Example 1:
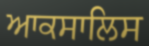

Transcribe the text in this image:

ਆਕਸਾਲਿਸ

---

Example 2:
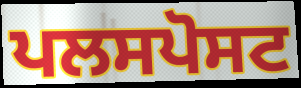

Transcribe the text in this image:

ਪਲਸਪੋਸਟ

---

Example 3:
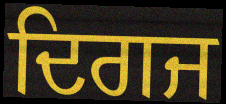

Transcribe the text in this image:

ਦਿਗਜ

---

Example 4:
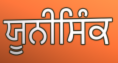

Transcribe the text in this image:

ਯੂਨੀਸਿੰਕ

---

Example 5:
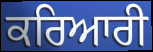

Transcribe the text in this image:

ਕਰਿਆਰੀ